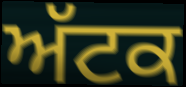
ਅੱਟਕ